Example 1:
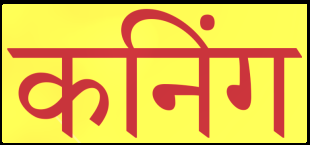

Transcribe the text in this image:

कनिंग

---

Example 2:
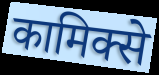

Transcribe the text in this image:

कामिक्से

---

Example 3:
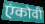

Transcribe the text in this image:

एंकोवी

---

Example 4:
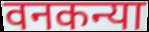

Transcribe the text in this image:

वनकन्या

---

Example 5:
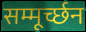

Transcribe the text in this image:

सम्मूर्च्छन